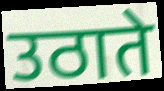
उठाते